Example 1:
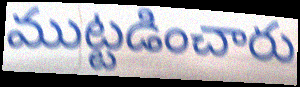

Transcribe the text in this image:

ముట్టడించారు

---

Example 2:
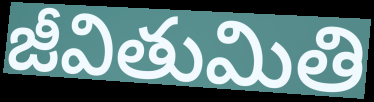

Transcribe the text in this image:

జీవితుమితి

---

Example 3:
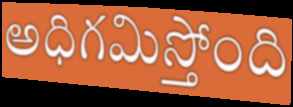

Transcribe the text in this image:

అధిగమిస్తోంది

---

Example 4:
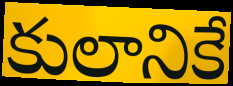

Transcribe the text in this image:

కులానికే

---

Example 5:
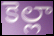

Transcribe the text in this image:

కెల్లా